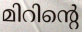
മിറിന്റെ